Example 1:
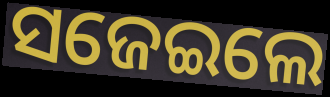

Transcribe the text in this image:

ସଜେଇଲେ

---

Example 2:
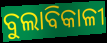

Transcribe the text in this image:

ବୁଲାବିକାଳୀ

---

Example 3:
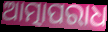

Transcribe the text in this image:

ଆତ୍ମାପରାଧ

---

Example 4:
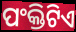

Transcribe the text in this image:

ପଂକ୍ତିଟିଏ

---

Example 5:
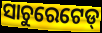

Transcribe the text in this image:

ସାଚୁରେଟେଡ୍